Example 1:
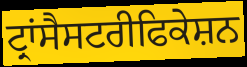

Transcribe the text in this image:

ਟ੍ਰਾਂਸੈਸਟਰੀਫਿਕੇਸ਼ਨ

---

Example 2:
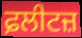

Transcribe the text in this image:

ਫ਼ਲੀਟਜ਼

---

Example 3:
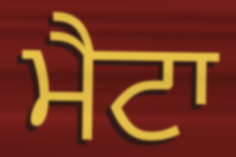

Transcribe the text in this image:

ਮੈਟਾ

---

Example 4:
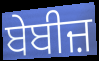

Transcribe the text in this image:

ਬੇਬੀਜ਼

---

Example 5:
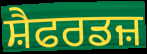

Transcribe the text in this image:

ਸ਼ੈਫਰਡਜ਼